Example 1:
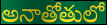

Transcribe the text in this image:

అనాతోతులో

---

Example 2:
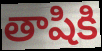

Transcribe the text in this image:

తాషికి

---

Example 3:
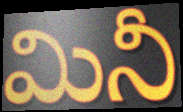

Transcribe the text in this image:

మినీ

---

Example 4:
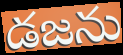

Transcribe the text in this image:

డజను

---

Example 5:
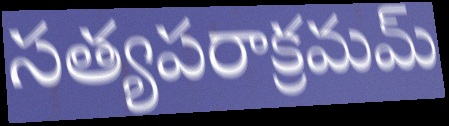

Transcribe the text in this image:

సత్యపరాక్రమమ్